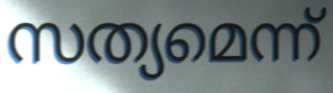
സത്യമെന്ന്